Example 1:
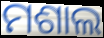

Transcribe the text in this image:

ମଶାଲ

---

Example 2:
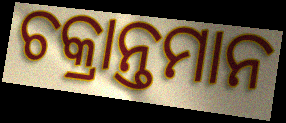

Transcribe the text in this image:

ଚକ୍ରାନ୍ତମାନ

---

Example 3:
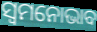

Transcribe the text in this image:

ସ୍ୱମନୋଭାବ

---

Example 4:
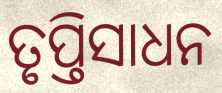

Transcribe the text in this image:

ତୃପ୍ତିସାଧନ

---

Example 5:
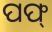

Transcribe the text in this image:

ପଫ୍